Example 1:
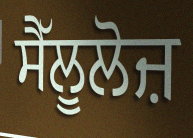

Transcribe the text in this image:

ਸੈੱਲੂਲੋਜ਼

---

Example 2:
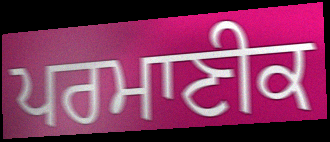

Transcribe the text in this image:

ਪਰਮਾਣੀਕ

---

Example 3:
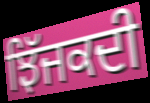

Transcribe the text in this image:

ਝਿੱਜਕਦੀ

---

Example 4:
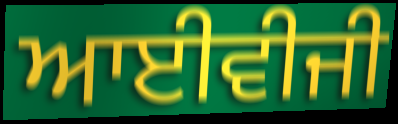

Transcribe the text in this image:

ਆਈਵੀਜੀ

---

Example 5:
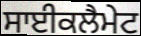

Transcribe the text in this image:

ਸਾਈਕਲੈਮੇਟ